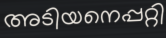
അടിയനെപ്പറ്റി